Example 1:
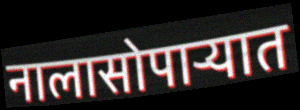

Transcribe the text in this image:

नालासोपाऱ्यात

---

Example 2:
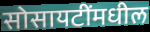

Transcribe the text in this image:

सोसायटींमधील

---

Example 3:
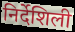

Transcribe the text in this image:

निर्देशिली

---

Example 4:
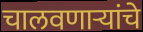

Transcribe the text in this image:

चालवणाऱ्यांचे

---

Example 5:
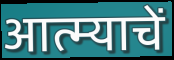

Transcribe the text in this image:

आत्म्याचें